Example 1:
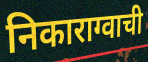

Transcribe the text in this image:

निकाराग्वाची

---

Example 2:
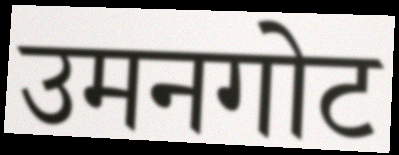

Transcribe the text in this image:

उमनगोट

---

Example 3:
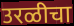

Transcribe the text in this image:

उरळीचा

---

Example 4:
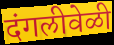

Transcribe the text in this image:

दंगलीवेळी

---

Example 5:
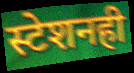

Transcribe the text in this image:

स्टेशनही